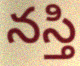
నస్తి